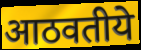
आठवतीये